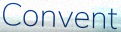
Convent